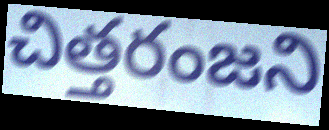
చిత్తరంజని